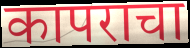
कापराचा